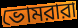
ভোমরারা